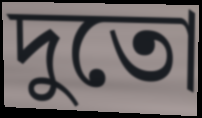
দুতো